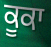
ਕੂਕਾ